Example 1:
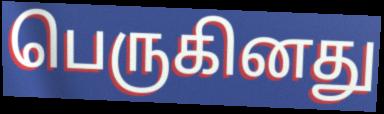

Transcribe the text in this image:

பெருகினது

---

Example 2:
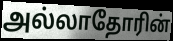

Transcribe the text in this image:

அல்லாதோரின்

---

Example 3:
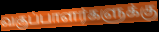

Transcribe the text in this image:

வகுப்பாளர்களுக்கு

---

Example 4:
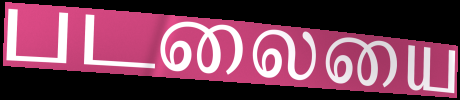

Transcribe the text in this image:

படலையை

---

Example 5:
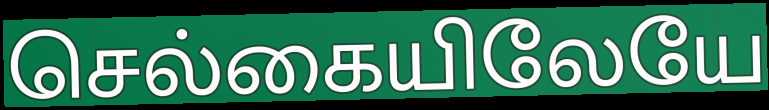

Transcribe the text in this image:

செல்கையிலேயே